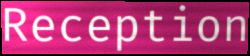
Reception